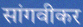
सांगवीकर